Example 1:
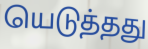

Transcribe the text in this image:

யெடுத்தது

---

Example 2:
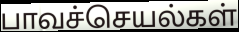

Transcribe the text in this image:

பாவச்செயல்கள்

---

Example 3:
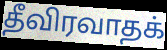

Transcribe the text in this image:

தீவிரவாதக்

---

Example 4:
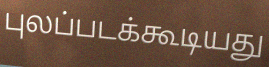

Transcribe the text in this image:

புலப்படக்கூடியது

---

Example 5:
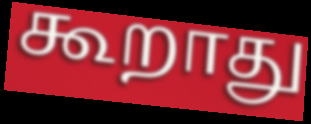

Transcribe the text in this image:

கூறாது